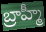
బ్రాహ్మీ